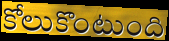
కోలుకొంటుంది